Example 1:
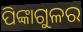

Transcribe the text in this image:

ପିଙ୍କାଗୁଳର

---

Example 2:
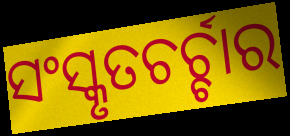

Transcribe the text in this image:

ସଂସ୍କୃତଚର୍ଚ୍ଚାର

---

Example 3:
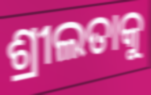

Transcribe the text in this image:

ଶ୍ରୀଲତାକୁ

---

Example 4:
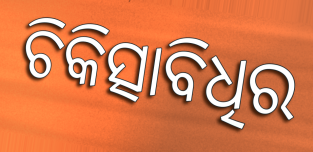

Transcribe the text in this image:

ଚିକିତ୍ସାବିଧିର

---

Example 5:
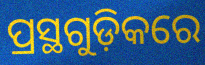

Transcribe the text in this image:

ପ୍ରସ୍ଥଗୁଡ଼ିକରେ